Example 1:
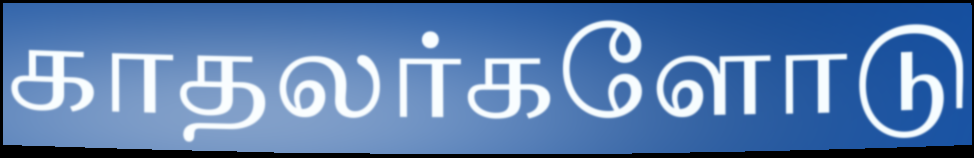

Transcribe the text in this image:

காதலர்களோடு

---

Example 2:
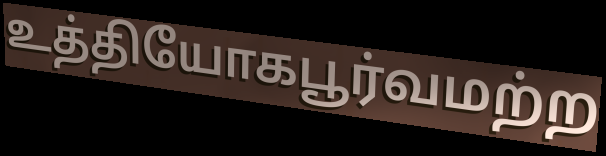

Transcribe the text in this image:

உத்தியோகபூர்வமற்ற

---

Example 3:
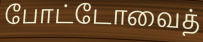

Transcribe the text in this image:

போட்டோவைத்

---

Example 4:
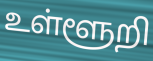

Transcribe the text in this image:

உள்ளூறி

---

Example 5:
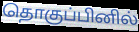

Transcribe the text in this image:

தொகுப்பினில்